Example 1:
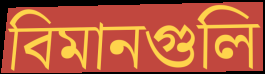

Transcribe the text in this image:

বিমানগুলি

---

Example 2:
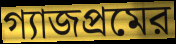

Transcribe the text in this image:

গ্যাজপ্রমের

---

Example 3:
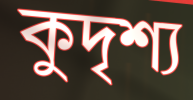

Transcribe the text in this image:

কুদৃশ্য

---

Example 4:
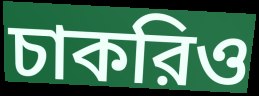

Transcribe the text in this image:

চাকরিও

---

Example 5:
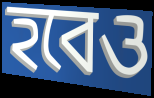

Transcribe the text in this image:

হবেও